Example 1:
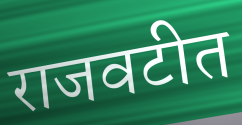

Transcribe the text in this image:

राजवटीत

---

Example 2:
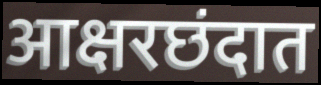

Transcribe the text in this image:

आक्षरछंदात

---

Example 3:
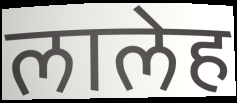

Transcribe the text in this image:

लालेह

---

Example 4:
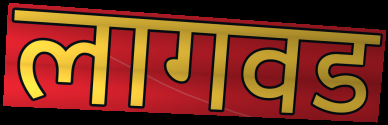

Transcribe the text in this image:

लागवड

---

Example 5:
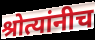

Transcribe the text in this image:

श्रोत्यांनीच